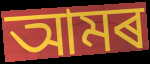
আমৰ